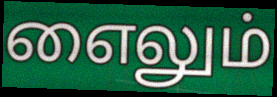
எைலும்